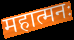
महात्मनः